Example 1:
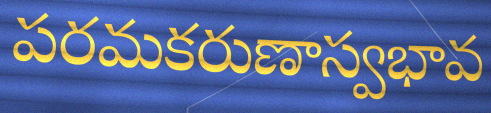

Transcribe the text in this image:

పరమకరుణాస్వభావ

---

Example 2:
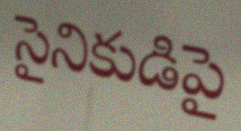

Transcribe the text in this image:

సైనికుడిపై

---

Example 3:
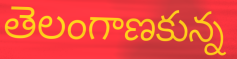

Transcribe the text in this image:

తెలంగాణకున్న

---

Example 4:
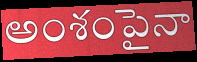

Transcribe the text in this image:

అంశంపైనా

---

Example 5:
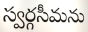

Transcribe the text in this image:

స్వర్గసీమను